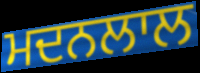
ਮਦਨਲਾਲ